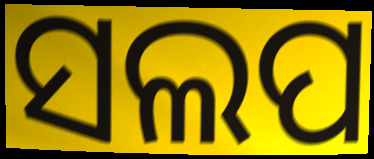
ସଲପ